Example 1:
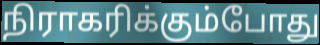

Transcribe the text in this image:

நிராகரிக்கும்போது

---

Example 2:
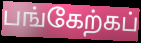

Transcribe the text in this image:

பங்கேற்கப்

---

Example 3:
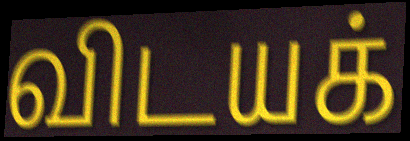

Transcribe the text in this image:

விடயக்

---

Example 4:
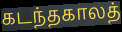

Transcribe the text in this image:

கடந்தகாலத்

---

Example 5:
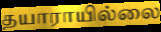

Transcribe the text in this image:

தயாராயில்லை